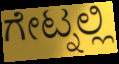
ಗೇಟ್ನಲ್ಲಿ